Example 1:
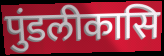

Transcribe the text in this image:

पुंडलीकासि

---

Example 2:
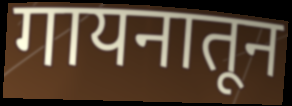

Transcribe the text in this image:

गायनातून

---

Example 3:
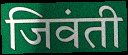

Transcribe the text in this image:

जिवंती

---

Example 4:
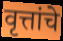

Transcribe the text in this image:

वृत्तांचे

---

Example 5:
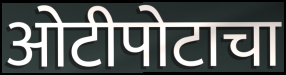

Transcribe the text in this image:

ओटीपोटाचा